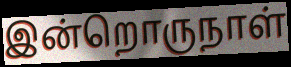
இன்றொருநாள்